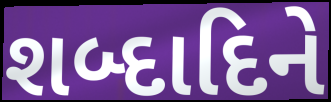
શબ્દાદિને